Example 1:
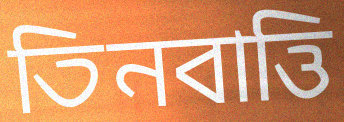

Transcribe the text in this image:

তিনবাত্তি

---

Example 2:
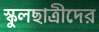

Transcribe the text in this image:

স্কুলছাত্রীদের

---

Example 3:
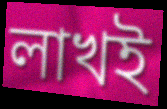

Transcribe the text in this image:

লাখই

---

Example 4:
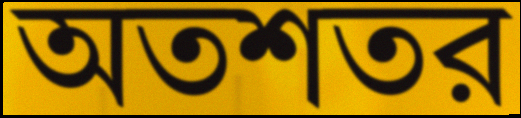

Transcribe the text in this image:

অতশতর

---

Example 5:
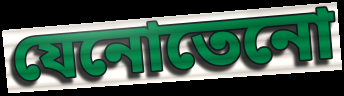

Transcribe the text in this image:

যেনোতেনো